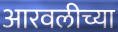
आरवलीच्या